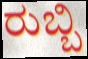
ರುಬ್ಬಿ